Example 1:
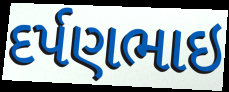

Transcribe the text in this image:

દર્પણભાઇ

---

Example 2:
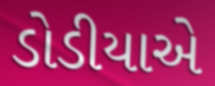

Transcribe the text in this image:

ડોડીયાએ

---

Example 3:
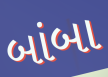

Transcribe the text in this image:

બાંબા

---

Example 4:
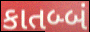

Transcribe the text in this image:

કાતબ્બં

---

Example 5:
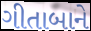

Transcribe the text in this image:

ગીતાબાને